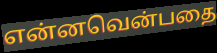
என்னவென்பதை